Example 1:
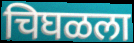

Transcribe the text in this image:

चिघळला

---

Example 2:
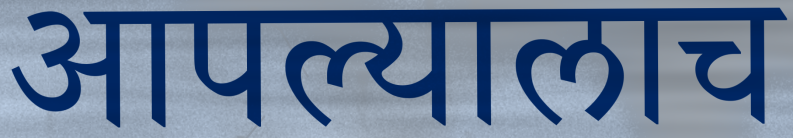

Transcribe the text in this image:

आपल्यालाच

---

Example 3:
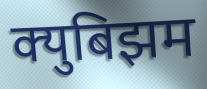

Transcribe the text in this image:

क्युबिझम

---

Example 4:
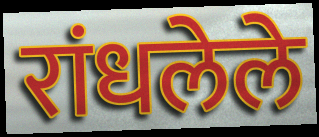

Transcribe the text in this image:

रांधलेले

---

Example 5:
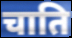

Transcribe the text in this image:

चाति